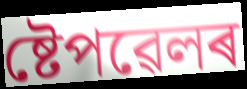
ষ্টেপৱেলৰ